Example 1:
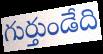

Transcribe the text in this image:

గుర్తుండేది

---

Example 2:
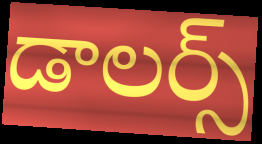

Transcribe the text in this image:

డాలర్స్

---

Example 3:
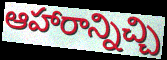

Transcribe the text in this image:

ఆహారాన్నిచ్చి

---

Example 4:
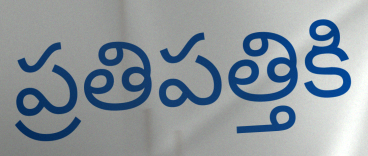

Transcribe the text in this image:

ప్రతిపత్తికి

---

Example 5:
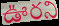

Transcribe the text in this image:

ఊరని